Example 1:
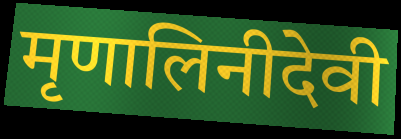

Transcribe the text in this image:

मृणालिनीदेवी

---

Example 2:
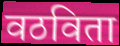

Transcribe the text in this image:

वठविता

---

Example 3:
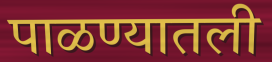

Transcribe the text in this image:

पाळण्यातली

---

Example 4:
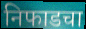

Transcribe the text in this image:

निफाडचा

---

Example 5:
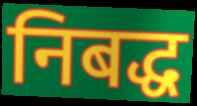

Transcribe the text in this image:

निबद्ध